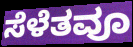
ಸೆಳೆತವೂ